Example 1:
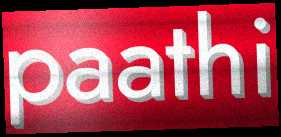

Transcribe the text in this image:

paathi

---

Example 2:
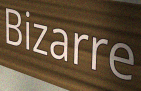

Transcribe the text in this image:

Bizarre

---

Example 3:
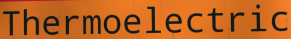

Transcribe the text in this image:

Thermoelectric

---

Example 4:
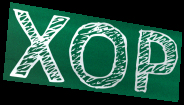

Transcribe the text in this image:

XOP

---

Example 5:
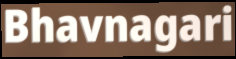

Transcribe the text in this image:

Bhavnagari